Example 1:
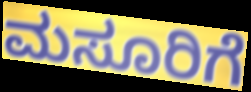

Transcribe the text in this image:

ಮಸೂರಿಗೆ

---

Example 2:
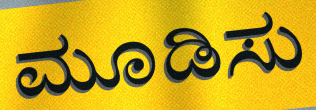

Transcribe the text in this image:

ಮೂಡಿಸು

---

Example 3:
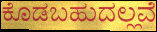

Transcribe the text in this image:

ಕೊಡಬಹುದಲ್ಲವೆ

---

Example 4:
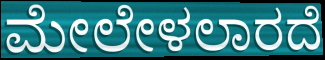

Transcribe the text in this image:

ಮೇಲೇಳಲಾರದೆ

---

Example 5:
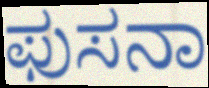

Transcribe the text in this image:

ಫುಸನಾ